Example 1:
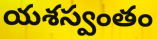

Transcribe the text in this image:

యశస్వంతం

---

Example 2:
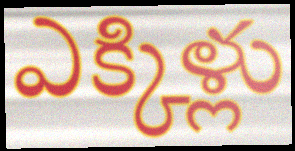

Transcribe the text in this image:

ఎక్కిళ్లు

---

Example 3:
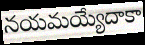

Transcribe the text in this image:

నయమయ్యేదాకా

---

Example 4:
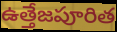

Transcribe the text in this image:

ఉత్తేజపూరిత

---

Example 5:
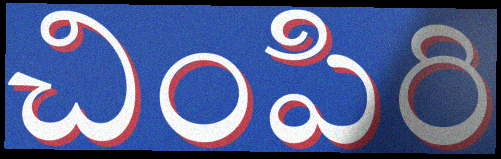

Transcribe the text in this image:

చింపిరి